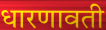
धारणावती